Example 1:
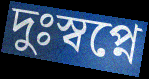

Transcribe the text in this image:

দুঃস্বপ্নে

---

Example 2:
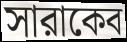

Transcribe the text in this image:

সারাকেব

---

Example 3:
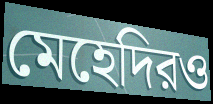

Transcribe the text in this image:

মেহেদিরও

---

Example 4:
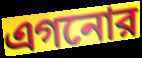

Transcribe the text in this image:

এগনোর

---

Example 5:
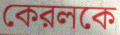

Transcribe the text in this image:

কেরলকে